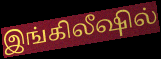
இங்கிலீஷில்